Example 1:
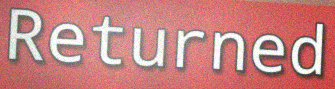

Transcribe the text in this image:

Returned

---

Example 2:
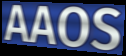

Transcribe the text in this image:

AAOS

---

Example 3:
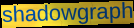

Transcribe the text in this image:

shadowgraph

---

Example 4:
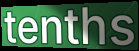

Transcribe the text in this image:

tenths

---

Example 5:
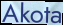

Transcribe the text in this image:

Akota